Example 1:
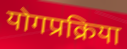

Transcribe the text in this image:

योगप्रक्रिया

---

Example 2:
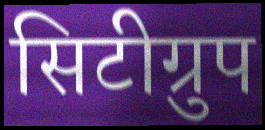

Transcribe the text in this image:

सिटीग्रुप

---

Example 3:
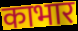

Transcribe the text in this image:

काभार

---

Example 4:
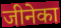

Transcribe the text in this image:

जीनेका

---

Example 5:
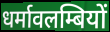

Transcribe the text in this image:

धर्मावलम्बियों